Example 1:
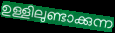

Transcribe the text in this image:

ഉള്ളിലുണ്ടാക്കുന്ന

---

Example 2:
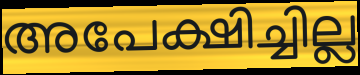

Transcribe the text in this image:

അപേക്ഷിച്ചില്ല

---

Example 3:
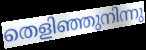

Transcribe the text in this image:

തെളിഞ്ഞുനിന്നു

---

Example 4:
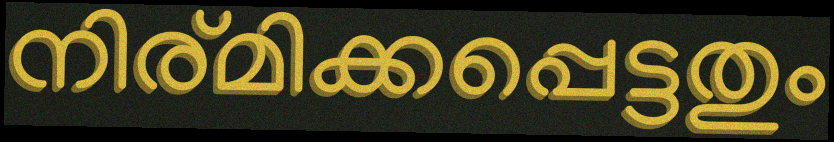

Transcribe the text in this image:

നിര്മിക്കപ്പെട്ടതും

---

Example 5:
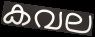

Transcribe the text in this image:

കവല